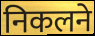
निकलने